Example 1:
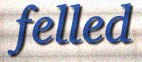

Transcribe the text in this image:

felled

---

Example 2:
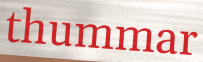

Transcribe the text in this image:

thummar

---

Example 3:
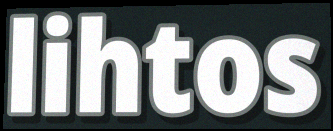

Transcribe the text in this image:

lihtos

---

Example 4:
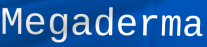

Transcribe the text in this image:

Megaderma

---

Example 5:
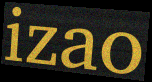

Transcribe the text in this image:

izao